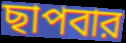
ছাপবার